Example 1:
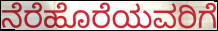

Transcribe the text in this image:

ನೆರೆಹೊರೆಯವರಿಗೆ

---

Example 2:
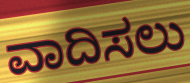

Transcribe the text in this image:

ವಾದಿಸಲು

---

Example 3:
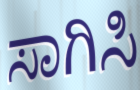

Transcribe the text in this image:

ಸಾಗಿಸಿ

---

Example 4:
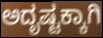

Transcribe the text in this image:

ಅದೃಷ್ಟಕ್ಕಾಗಿ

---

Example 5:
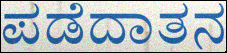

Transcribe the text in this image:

ಪಡೆದಾತನ